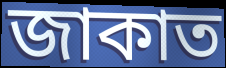
জাকাত